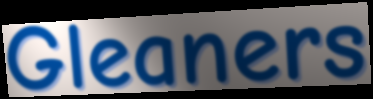
Gleaners